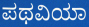
ಪಥವಿಯಾ